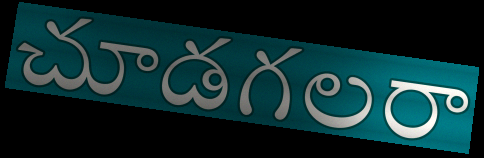
చూడగలరా